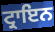
ਟ੍ਰਾਇਨ